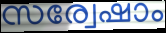
സര്വേഷാം